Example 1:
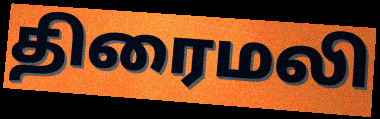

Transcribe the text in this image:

திரைமலி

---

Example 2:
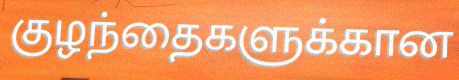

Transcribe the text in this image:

குழந்தைகளுக்கான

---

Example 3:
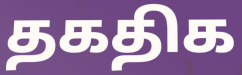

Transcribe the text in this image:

தகதிக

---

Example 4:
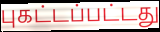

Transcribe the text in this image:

புகட்டப்பட்டது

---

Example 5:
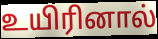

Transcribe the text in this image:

உயிரினால்